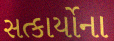
સત્કાર્યોના